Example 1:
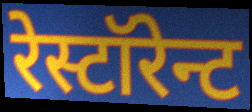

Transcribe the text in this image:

रेस्टॉरेन्ट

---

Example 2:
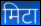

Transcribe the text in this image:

मिटा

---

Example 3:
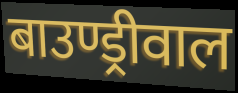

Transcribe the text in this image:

बाउण्ड्रीवाल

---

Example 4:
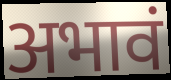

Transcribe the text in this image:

अभावं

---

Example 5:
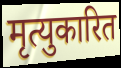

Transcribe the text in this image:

मृत्युकारित